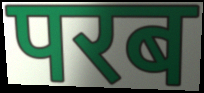
परब